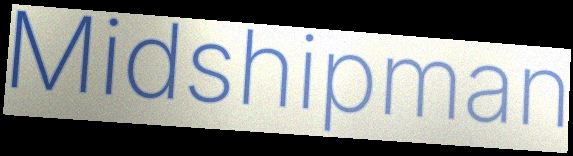
Midshipman